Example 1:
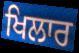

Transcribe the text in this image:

ਖਿਲਾਰ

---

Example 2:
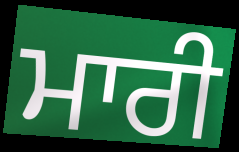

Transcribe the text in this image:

ਮਾਰੀ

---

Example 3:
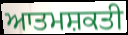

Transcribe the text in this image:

ਆਤਮਸ਼ਕਤੀ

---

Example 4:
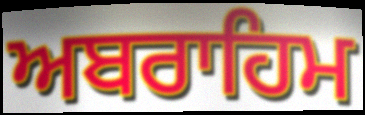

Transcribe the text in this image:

ਅਬਰਾਹਿਮ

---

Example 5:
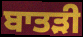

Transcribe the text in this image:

ਬਾਤੜੀ